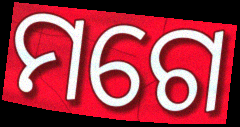
ମଗେ